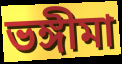
ভঙ্গীমা